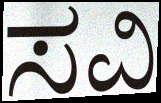
ಸವಿ